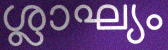
ശ്ലാഘ്യം